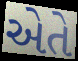
એતે